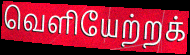
வெளியேற்றக்